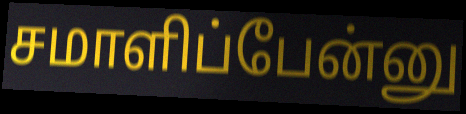
சமாளிப்பேன்னு